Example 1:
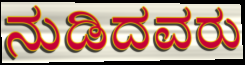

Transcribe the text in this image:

ನುಡಿದವರು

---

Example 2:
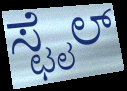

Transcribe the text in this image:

ಸ್ಟೈಲ್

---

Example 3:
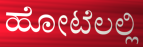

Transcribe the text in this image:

ಹೋಟೆಲಲ್ಲಿ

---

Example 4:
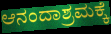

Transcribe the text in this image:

ಆನಂದಾಶ್ರಮಕ್ಕೆ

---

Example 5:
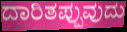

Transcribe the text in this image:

ದಾರಿತಪ್ಪುವುದು